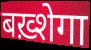
बख़्शेगा